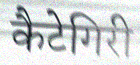
कैटेगिरी